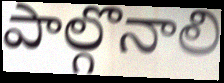
పాల్గొనాలి